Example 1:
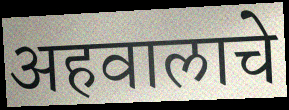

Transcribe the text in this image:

अहवालाचे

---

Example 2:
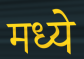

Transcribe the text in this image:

मध्ये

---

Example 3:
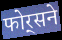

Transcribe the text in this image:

फोर्सने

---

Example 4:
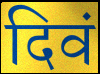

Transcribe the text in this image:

दिवं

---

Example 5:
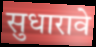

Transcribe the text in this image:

सुधारावे